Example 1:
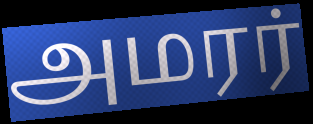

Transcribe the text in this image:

அமரர்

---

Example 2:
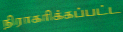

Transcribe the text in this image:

நிராகரிக்கப்பட்ட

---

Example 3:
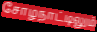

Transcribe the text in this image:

சோழநாட்டிலும்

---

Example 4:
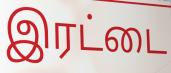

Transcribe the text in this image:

இரட்டை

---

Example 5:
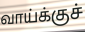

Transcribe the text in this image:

வாய்க்குச்